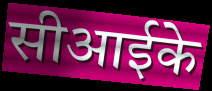
सीआईके